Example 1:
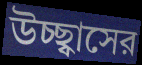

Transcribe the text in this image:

উচ্ছ্বাসের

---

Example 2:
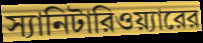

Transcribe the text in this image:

স্যানিটারিওয়্যারের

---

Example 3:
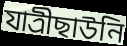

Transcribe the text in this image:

যাত্রীছাউনি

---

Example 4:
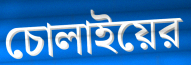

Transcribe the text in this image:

চোলাইয়ের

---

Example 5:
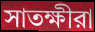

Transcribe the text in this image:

সাতক্ষীরা